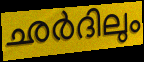
ഛർദിലും